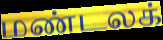
மண்டலக்